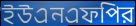
ইউএনএফপির